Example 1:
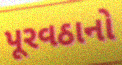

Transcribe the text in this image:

પૂરવઠાનો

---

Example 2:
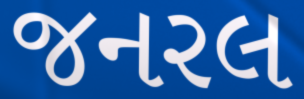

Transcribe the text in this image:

જનરલ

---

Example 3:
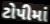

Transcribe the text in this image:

ટોપીમાં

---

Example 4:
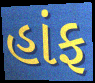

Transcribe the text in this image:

હાંફ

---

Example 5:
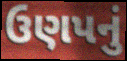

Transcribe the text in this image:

ઉણપનું